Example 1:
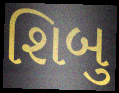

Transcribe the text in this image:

શિબુ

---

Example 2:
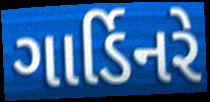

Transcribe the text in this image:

ગાર્ડિનરે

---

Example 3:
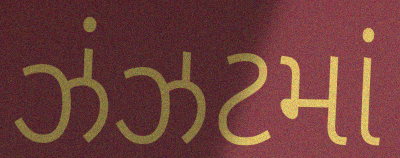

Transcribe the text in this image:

ઝંઝટમાં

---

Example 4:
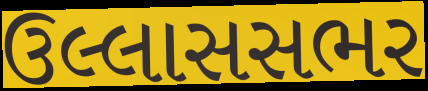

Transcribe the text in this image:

ઉલ્લાસસભર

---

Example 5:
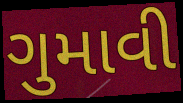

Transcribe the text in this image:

ગુમાવી